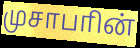
முசாபரின்